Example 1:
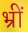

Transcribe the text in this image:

भ्रीं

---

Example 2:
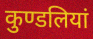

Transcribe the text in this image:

कुण्डलियां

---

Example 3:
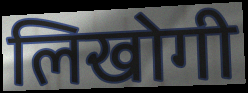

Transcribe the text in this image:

लिखोगी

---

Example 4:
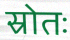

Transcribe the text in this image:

स्रोतः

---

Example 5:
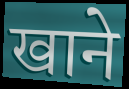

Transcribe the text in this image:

खाने